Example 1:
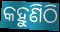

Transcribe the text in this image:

କହୁଣିଠି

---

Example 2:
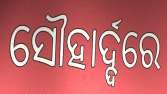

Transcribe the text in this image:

ସୌହାର୍ଦ୍ଦରେ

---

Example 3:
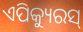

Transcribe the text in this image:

ଏପିକ୍ୟୁରସ୍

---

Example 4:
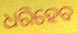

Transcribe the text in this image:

ଧରିହେବ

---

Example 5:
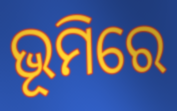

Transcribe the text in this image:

ଭୂମିରେ